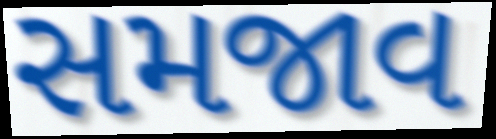
સમજાવ